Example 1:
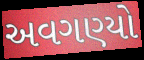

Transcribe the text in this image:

અવગણ્યો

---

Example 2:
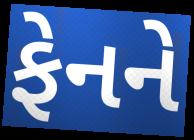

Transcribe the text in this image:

ફેનને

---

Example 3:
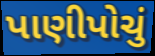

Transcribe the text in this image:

પાણીપોચું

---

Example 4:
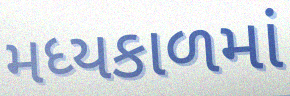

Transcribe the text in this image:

મધ્યકાળમાં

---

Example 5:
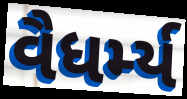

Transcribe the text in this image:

વૈધર્મ્ય